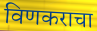
विणकराचा